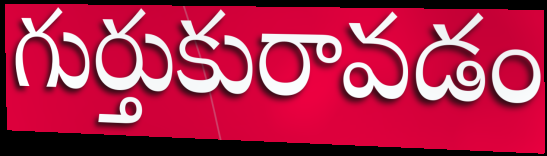
గుర్తుకురావడం